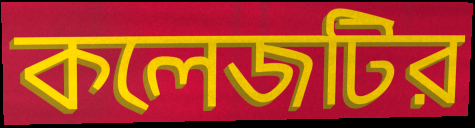
কলেজটির